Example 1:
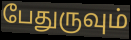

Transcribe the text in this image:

பேதுருவும்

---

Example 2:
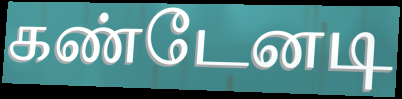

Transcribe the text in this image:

கண்டேனடி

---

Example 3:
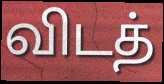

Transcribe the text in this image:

விடத்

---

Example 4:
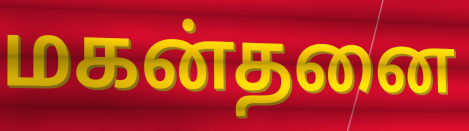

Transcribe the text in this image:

மகன்தனை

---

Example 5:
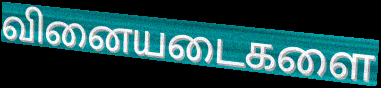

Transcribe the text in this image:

வினையடைகளை